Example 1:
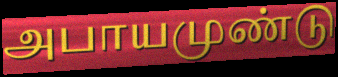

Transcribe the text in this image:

அபாயமுண்டு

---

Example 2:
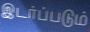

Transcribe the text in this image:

இடர்ப்படும்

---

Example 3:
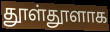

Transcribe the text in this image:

தூள்தூளாக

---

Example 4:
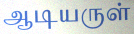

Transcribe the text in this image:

ஆடியருள்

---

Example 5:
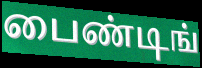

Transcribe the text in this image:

பைண்டிங்